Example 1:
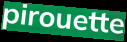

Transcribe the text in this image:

pirouette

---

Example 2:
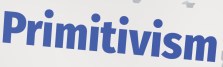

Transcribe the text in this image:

Primitivism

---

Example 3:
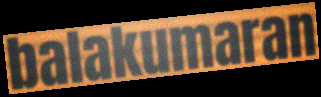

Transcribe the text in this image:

balakumaran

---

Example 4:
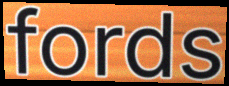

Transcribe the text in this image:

fords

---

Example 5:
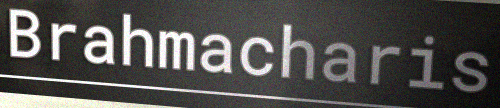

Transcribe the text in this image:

Brahmacharis